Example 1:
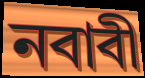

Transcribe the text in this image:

নবাবী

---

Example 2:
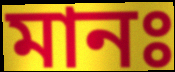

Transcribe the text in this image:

মানঃ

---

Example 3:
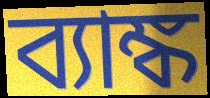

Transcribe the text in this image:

ব্যাঙ্ক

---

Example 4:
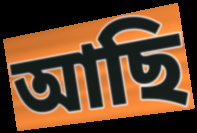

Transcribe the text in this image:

আছি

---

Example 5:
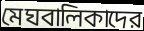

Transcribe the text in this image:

মেঘবালিকাদের